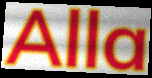
Alla